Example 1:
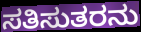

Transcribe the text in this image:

ಸತಿಸುತರನು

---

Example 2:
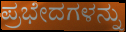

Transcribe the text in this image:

ಪ್ರಭೇದಗಳನ್ನು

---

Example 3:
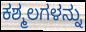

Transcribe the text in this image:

ಕಶ್ಮಲಗಳನ್ನು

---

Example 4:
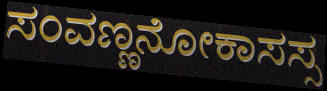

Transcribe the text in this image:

ಸಂವಣ್ಣನೋಕಾಸಸ್ಸ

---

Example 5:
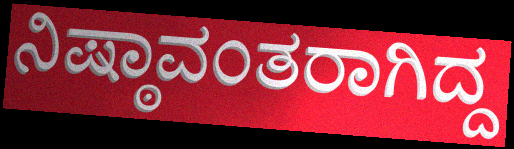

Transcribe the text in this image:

ನಿಷ್ಠಾವಂತರಾಗಿದ್ದ